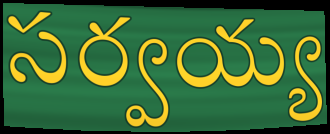
సర్వయ్య